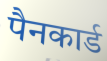
पैनकार्ड